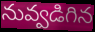
నువ్వడిగిన